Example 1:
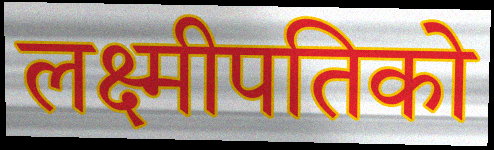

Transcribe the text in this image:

लक्ष्मीपतिको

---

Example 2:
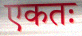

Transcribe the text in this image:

एकतः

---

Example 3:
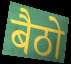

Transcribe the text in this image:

बैठो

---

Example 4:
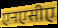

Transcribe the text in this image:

एनएसीए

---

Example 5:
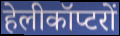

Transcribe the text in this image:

हेलीकॉप्टरों